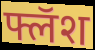
फ्लॅश